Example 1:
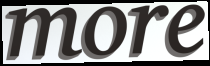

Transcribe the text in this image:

more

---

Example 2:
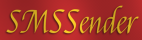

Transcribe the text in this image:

SMSSender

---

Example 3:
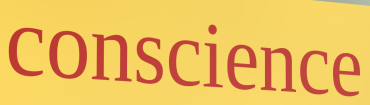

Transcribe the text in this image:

conscience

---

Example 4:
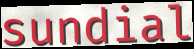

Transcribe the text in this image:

sundial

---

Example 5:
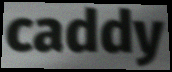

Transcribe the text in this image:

caddy